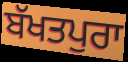
ਬੱਖਤਪੁਰਾ